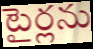
టైర్లను